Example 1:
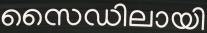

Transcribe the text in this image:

സൈഡിലായി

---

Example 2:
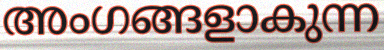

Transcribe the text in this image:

അംഗങ്ങളാകുന്ന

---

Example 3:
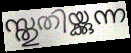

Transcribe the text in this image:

സ്തുതിയ്ക്കുന്ന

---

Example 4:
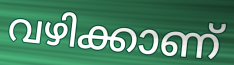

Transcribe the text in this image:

വഴിക്കാണ്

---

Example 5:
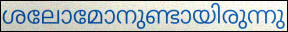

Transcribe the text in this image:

ശലോമോനുണ്ടായിരുന്നു